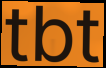
tbt